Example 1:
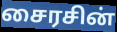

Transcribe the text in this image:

சைரசின்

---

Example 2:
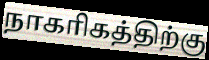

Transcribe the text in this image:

நாகரிகத்திற்கு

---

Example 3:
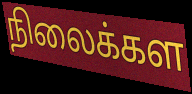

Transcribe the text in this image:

நிலைக்கள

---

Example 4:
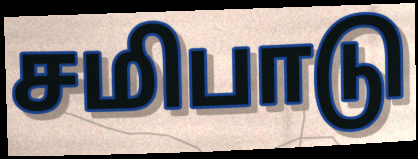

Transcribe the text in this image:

சமிபாடு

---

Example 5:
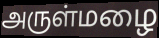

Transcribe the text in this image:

அருள்மழை